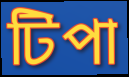
টিপা